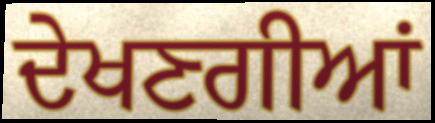
ਦੇਖਣਗੀਆਂ